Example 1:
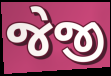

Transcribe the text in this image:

જેજી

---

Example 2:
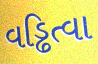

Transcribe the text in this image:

વડ્ઢિત્વા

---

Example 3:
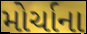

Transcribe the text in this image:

મોર્ચાના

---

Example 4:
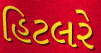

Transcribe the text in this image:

હિટલરે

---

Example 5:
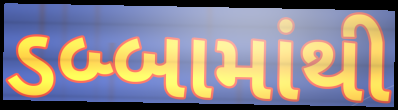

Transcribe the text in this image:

ડબ્બામાંથી